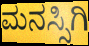
ಮನಸ್ಸಿಗಿ